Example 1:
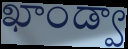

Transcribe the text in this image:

ఖాండ్వా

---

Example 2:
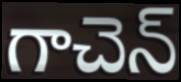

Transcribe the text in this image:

గాచెన్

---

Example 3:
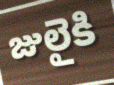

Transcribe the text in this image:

జులైకి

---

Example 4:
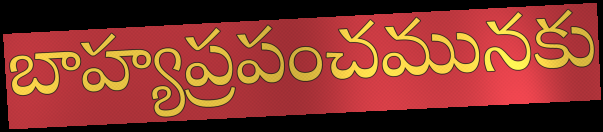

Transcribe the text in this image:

బాహ్యప్రపంచమునకు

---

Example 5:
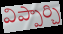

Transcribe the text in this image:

విప్పార్చి